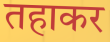
तहाकर